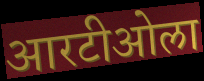
आरटीओला